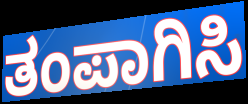
ತಂಪಾಗಿಸಿ